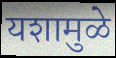
यशामुळे